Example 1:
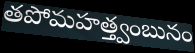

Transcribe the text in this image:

తపోమహత్త్వంబునం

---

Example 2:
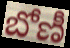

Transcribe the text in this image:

బోణీ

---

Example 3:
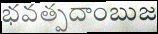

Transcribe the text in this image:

భవత్పదాంబుజ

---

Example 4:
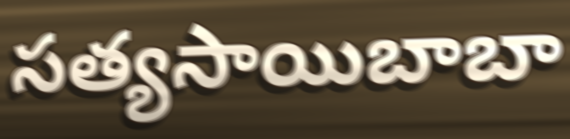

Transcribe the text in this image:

సత్యసాయిబాబా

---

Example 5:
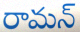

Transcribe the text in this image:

రామన్